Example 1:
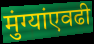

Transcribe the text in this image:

मुंग्यांएवढी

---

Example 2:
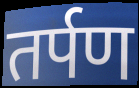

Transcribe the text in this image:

तर्पण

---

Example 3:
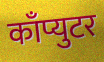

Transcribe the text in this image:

काँप्युटर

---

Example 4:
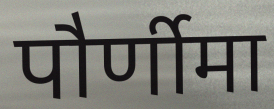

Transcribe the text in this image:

पौर्णीमा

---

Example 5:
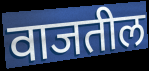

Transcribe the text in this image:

वाजतील